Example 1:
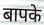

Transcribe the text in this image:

बापके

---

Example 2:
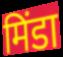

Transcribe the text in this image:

मिंडा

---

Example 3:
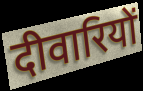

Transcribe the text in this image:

दीवारियों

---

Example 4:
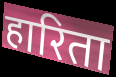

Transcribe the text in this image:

हारिता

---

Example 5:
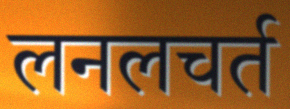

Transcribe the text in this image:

लनलचर्त